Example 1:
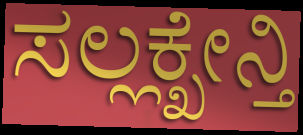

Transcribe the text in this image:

ಸಲ್ಲಕ್ಖೇನ್ತಿ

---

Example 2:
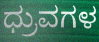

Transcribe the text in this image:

ಧ್ರುವಗಳ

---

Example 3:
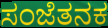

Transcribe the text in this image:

ಸಂಜೆತನಕ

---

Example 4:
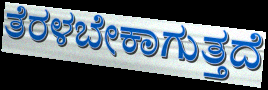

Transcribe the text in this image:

ತೆರಳಬೇಕಾಗುತ್ತದೆ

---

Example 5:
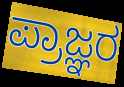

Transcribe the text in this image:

ಪ್ರಾಜ್ಞರ